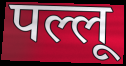
पल्लू